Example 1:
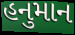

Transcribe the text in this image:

હનુમાન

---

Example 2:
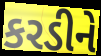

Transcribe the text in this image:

કરડીને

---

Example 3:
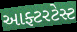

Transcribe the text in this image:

આફ્ટરટેસ્ટ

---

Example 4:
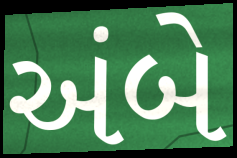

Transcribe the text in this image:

અંબે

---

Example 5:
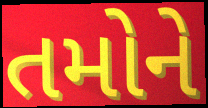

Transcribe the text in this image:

તમોને